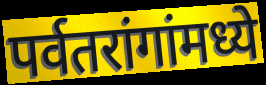
पर्वतरांगांमध्ये